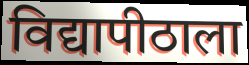
विद्यापीठाला